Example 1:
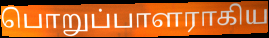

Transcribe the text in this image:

பொறுப்பாளராகிய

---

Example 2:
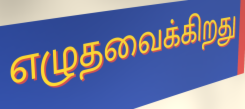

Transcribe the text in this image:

எழுதவைக்கிறது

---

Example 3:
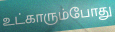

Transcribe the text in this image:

உட்காரும்போது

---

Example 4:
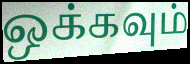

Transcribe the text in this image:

ஒக்கவும்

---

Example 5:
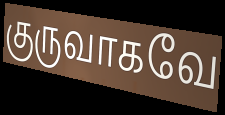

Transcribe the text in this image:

குருவாகவே